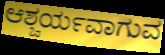
ಆಶ್ಚರ್ಯವಾಗುವ